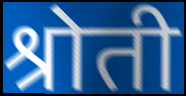
श्रोती